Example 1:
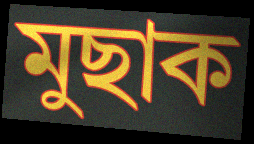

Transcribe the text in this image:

মুছাক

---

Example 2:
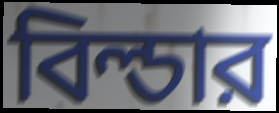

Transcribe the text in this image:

বিল্ডার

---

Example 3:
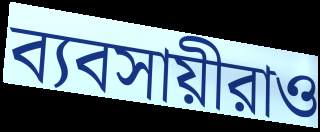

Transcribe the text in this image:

ব্যবসায়ীরাও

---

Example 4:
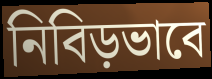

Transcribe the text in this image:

নিবিড়ভাবে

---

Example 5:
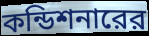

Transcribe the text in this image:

কন্ডিশনারের